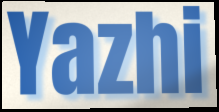
Yazhi